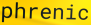
phrenic